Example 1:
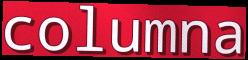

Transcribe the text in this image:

columna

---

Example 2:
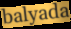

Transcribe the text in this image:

balyada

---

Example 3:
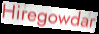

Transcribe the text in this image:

Hiregowdar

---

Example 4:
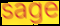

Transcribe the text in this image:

sage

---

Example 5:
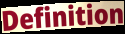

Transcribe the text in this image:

Definition